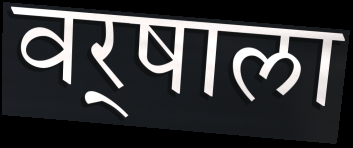
वर्षाला